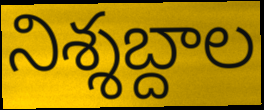
నిశ్శబ్దాల